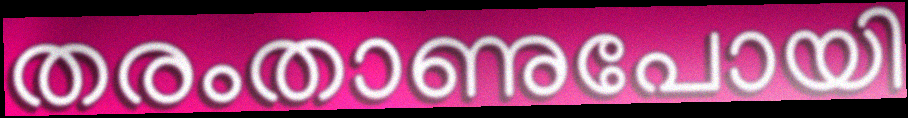
തരംതാണുപോയി